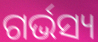
ଗର୍ଭସ୍ୟ